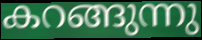
കറങ്ങുന്നു